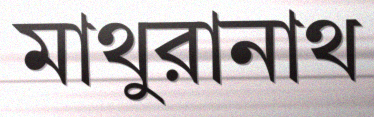
মাথুরানাথ